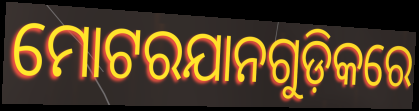
ମୋଟରଯାନଗୁଡ଼ିକରେ